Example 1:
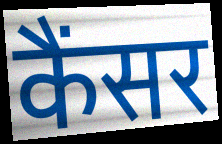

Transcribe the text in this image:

कैंसर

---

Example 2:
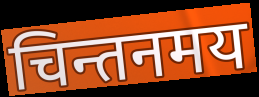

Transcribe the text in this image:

चिन्तनमय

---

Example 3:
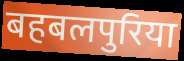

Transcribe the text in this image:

बहबलपुरिया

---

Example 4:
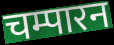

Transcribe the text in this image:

चम्पारन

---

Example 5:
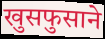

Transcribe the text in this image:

खुसफुसाने